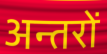
अन्तरों